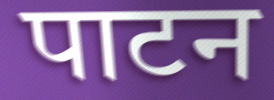
पाटन